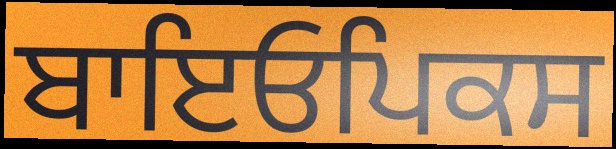
ਬਾਇਓਪਿਕਸ